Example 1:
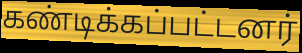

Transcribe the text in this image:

கண்டிக்கப்பட்டனர்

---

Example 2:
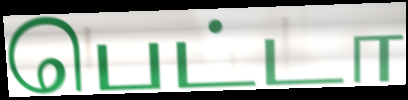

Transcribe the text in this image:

பெட்டா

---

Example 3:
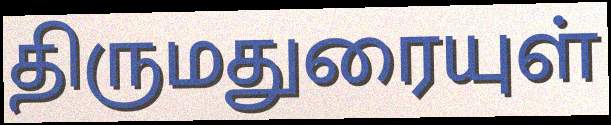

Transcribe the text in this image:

திருமதுரையுள்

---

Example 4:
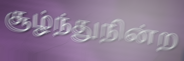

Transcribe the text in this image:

சூழ்ந்துநின்ற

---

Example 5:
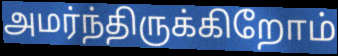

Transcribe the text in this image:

அமர்ந்திருக்கிறோம்